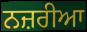
ਨਜ਼ਰੀਆ